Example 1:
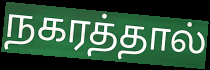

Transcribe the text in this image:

நகரத்தால்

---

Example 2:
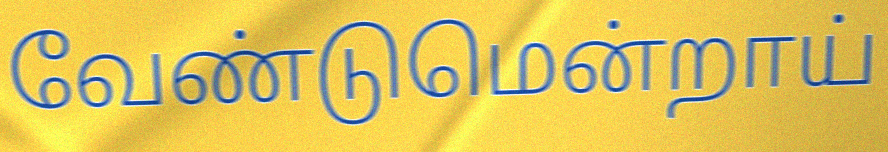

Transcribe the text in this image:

வேண்டுமென்றாய்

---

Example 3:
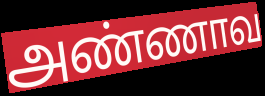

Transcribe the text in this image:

அண்ணாவ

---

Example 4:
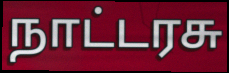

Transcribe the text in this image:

நாட்டரசு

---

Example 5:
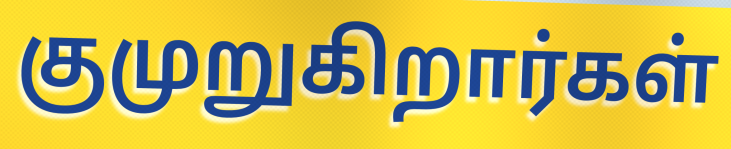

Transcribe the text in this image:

குமுறுகிறார்கள்